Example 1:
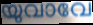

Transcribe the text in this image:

യുവാവേ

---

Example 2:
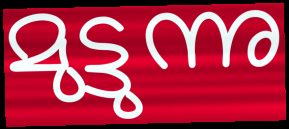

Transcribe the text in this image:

മുട്ടുന്നു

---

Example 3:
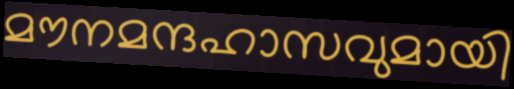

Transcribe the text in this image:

മൗനമന്ദഹാസവുമായി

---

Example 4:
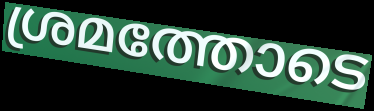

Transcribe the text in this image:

ശ്രമത്തോടെ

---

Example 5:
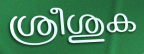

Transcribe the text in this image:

ശ്രീശുക